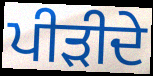
ਪੀੜੀਦੇ